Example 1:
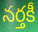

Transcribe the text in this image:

నర్తకీ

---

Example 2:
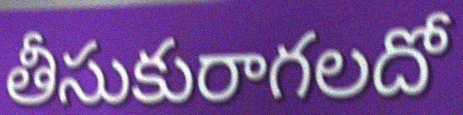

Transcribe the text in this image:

తీసుకురాగలదో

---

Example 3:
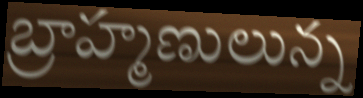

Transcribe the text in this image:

బ్రాహ్మణులున్న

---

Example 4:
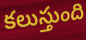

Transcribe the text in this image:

కలుస్తుంది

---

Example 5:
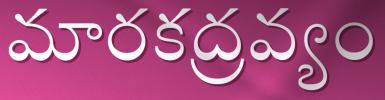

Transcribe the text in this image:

మారకద్రవ్యం